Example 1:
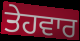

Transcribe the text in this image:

ਤੇਹਵਾਰ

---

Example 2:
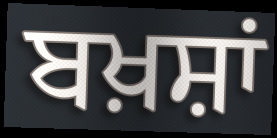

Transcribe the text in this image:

ਬਖ਼ਸ਼ਾਂ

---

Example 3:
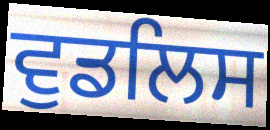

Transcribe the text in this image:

ਵੁਡਲਿਸ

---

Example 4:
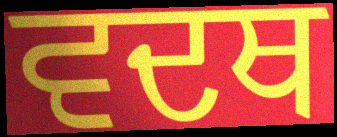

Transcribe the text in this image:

ਵਦਥ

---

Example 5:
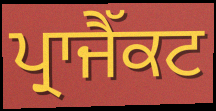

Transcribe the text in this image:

ਪ੍ਰਾਜੈੱਕਟ